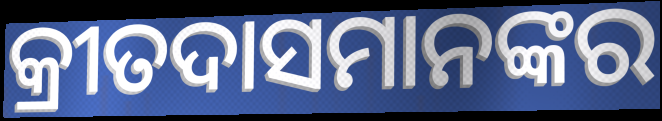
କ୍ରୀତଦାସମାନଙ୍କର